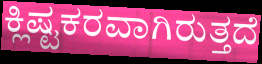
ಕ್ಲಿಷ್ಟಕರವಾಗಿರುತ್ತದೆ